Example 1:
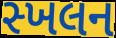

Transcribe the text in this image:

સ્ખલન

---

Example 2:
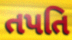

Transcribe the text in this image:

તપતિ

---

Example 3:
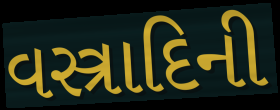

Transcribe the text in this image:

વસ્ત્રાદિની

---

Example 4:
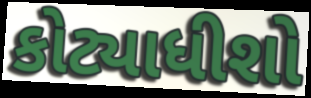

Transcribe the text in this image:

કોટ્યાધીશો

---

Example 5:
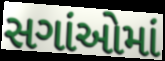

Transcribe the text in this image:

સગાંઓમાં